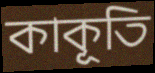
কাকূতি